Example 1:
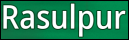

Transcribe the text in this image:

Rasulpur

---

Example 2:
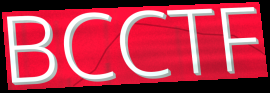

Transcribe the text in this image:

BCCTF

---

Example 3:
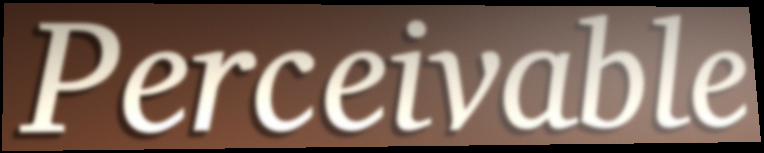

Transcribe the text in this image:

Perceivable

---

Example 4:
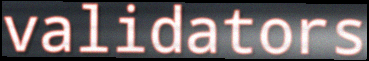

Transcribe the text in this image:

validators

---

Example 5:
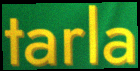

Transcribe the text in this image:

tarla